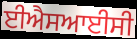
ਈਐਸਆਈਸੀ